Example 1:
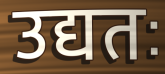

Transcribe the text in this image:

उद्यतः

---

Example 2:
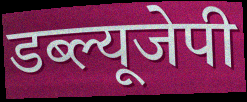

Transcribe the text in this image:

डब्ल्यूजेपी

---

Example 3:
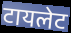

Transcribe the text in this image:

टायलेट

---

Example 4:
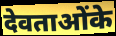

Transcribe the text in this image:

देवताओंके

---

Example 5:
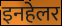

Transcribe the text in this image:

इनहेलर